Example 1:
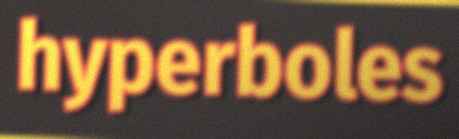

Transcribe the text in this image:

hyperboles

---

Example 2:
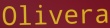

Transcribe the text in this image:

Olivera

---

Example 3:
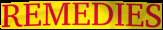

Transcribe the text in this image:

REMEDIES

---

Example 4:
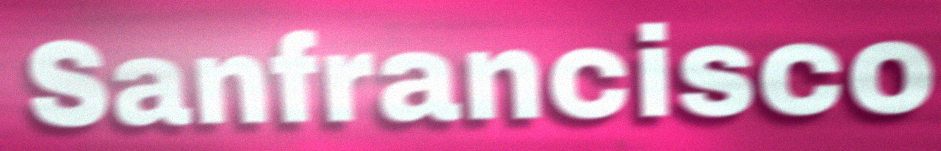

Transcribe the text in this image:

Sanfrancisco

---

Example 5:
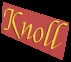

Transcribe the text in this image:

Knoll